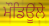
ਮੌਡਿਊਲੇ